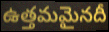
ఉత్తమమైనదీ